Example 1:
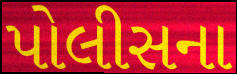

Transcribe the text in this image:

પોલીસના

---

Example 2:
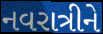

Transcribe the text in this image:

નવરાત્રીને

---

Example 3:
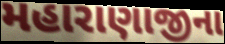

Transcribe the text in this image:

મહારાણાજીના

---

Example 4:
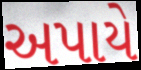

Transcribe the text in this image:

અપાયે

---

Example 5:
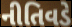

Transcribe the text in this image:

નીતિવડે